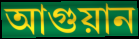
আগুয়ান